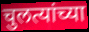
चुलत्यांच्या